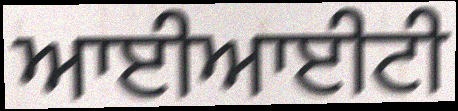
ਆਈਆਈਟੀ